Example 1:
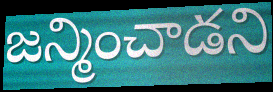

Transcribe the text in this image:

జన్మించాడని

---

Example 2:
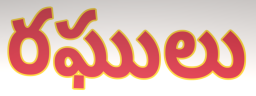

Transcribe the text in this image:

రఘులు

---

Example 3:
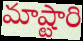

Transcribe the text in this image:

మాష్టారి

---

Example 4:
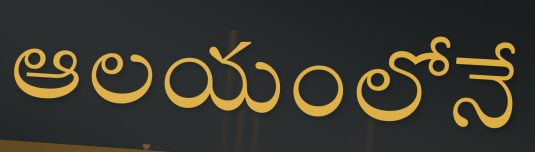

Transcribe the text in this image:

ఆలయంలోనే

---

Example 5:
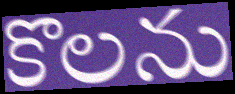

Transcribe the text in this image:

కొలను